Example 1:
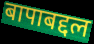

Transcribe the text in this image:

बापाबद्दल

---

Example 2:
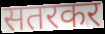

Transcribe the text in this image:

सतरकर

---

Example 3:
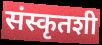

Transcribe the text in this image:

संस्कृतशी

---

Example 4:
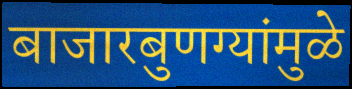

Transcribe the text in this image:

बाजारबुणग्यांमुळे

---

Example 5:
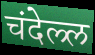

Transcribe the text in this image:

चंदेल्ल